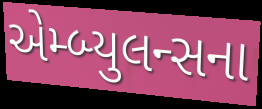
એમ્બ્યુલન્સના